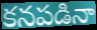
కనపడినా